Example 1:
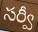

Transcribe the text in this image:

సర్వీ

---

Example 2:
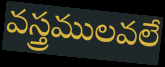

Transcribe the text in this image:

వస్త్రములవలే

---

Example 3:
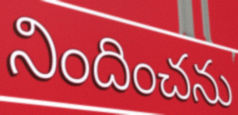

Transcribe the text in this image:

నిందించను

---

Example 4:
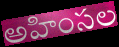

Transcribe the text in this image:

అహింసల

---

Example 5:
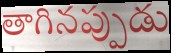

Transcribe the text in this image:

తాగినప్పుడు